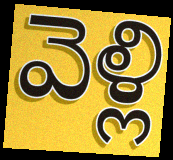
వెళ్లి